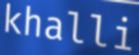
khalli